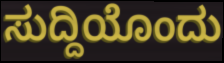
ಸುದ್ದಿಯೊಂದು